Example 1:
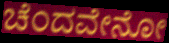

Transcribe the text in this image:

ಚೆಂದವೇನೋ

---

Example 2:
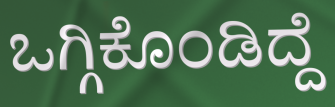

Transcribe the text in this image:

ಒಗ್ಗಿಕೊಂಡಿದ್ದೆ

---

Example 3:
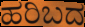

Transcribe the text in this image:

ಹರಿಬದ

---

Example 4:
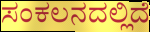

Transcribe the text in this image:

ಸಂಕಲನದಲ್ಲಿದೆ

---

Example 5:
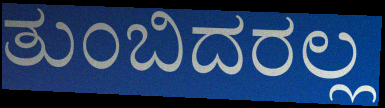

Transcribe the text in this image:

ತುಂಬಿದರಲ್ಲ